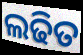
ଲଢିତ